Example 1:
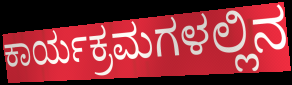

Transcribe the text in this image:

ಕಾರ್ಯಕ್ರಮಗಳಲ್ಲಿನ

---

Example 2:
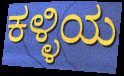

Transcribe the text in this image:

ಕಳ್ಳಿಯ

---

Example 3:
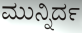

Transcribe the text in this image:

ಮುನ್ನಿರ್ದ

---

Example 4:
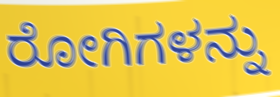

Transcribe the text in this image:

ರೋಗಿಗಳನ್ನು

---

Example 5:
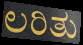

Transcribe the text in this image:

ಲರಿತು